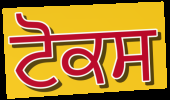
ਟੋਕਸ